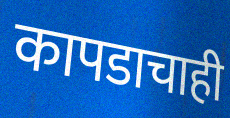
कापडाचाही